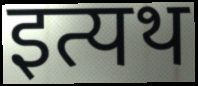
इत्यथ